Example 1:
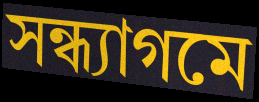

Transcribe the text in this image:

সন্ধ্যাগমে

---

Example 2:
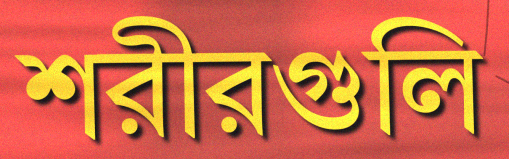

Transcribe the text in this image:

শরীরগুলি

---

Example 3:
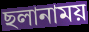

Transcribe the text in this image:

ছলানাময়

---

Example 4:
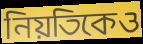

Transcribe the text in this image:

নিয়তিকেও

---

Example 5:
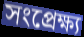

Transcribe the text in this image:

সংপ্রেক্ষ্য